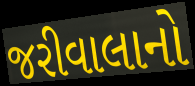
જરીવાલાનો